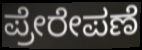
ಪ್ರೇರೇಪಣೆ